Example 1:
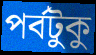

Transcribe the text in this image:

পর্বটুকু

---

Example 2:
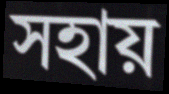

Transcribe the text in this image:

সহায়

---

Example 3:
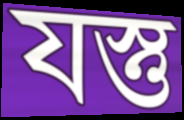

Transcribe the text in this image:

যস্তু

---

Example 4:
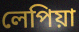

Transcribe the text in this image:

লেপিয়া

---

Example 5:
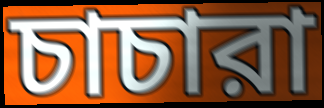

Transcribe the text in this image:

চাচারা